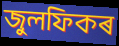
জুলফিকৰ